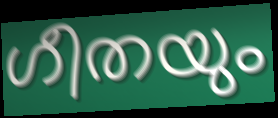
ഗീതയും